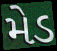
મેડ